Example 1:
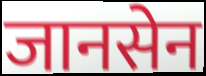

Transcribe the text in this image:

जानसेन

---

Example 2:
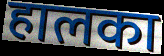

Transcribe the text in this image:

हालका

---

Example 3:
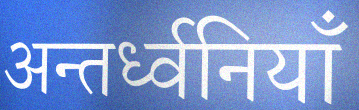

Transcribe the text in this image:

अन्तर्ध्वनियाँ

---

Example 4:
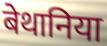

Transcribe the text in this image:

बेथानिया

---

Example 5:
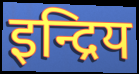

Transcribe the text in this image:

इन्द्रिय